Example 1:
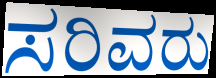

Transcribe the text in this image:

ಸರಿವರು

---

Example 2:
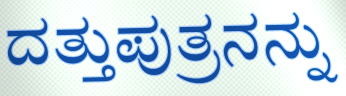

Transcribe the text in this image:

ದತ್ತುಪುತ್ರನನ್ನು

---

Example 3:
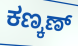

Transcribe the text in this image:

ಕಣ್ಕಣ್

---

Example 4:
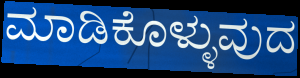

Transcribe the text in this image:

ಮಾಡಿಕೊಳ್ಳುವುದ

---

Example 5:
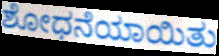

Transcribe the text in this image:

ಶೋಧನೆಯಾಯಿತು